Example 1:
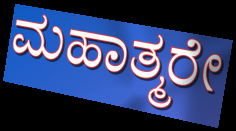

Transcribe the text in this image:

ಮಹಾತ್ಮರೇ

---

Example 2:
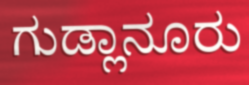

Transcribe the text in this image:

ಗುಡ್ಲಾನೂರು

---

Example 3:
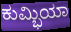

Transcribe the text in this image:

ಕುಮ್ಭಿಯಾ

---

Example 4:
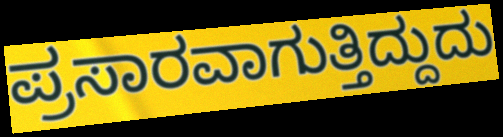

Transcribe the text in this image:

ಪ್ರಸಾರವಾಗುತ್ತಿದ್ದುದು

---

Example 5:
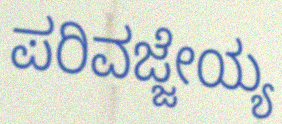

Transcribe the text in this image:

ಪರಿವಜ್ಜೇಯ್ಯ